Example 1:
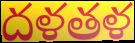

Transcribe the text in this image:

దళతళ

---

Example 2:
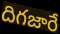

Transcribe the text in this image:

దిగజారే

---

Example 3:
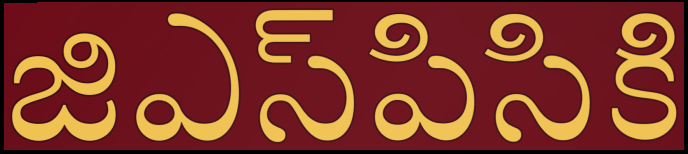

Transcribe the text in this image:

జిఎస్‌పిసికి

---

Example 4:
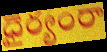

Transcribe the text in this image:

ధైర్యంరా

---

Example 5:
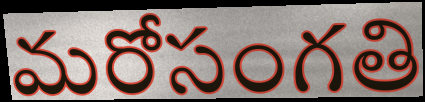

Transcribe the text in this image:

మరోసంగతి